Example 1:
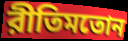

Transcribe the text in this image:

রীতিমতোন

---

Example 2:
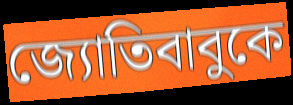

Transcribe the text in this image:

জ্যোতিবাবুকে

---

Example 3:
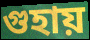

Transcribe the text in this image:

গুহায়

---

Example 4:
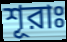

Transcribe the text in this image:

শূরাঃ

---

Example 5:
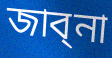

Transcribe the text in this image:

জাব্‌না